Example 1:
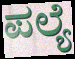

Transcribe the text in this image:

ಪಲ್ಯೆ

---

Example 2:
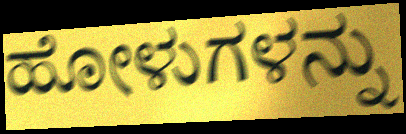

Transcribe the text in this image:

ಹೋಳುಗಳನ್ನು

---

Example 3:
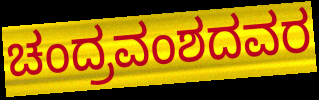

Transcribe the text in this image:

ಚಂದ್ರವಂಶದವರ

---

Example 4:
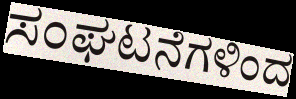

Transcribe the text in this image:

ಸಂಘಟನೆಗಳಿಂದ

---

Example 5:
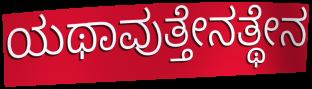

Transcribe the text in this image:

ಯಥಾವುತ್ತೇನತ್ಥೇನ